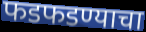
फडफडण्याचा